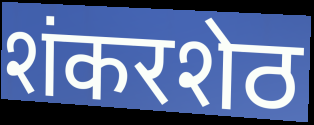
शंकरशेठ